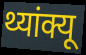
थ्यांक्यू